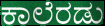
ಕಾಲೆರಡು